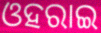
ଓହରାଇ